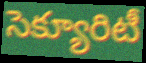
సెక్యూరిటీ